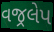
વજ્રલેપ